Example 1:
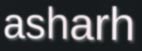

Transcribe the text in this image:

asharh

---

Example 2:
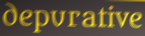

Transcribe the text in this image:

depurative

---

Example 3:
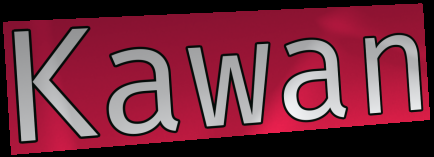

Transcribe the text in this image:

Kawan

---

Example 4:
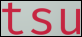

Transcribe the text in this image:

tsu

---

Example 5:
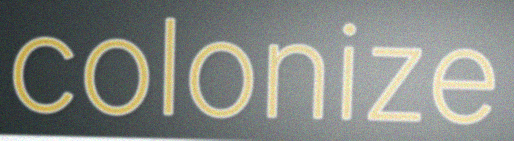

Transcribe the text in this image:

colonize